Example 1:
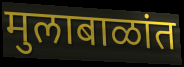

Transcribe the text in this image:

मुलाबाळांत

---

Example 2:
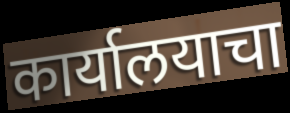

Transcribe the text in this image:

कार्यालयाचा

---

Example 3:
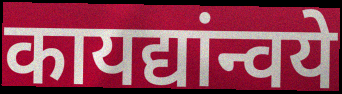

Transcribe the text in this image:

कायद्यांन्वये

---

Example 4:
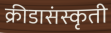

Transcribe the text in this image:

क्रीडासंस्कृती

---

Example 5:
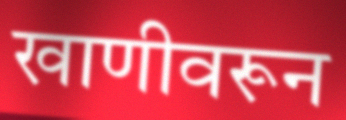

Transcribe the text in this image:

खाणीवरून